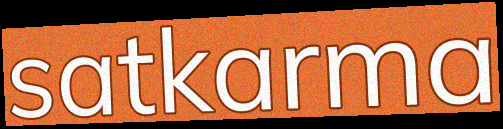
satkarma